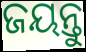
ଜୟନ୍ତୁ